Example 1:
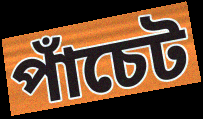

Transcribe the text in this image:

পাঁচেট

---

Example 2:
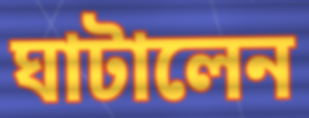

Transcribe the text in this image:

ঘাটালেন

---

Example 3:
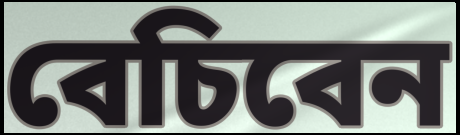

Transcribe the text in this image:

বেচিবেন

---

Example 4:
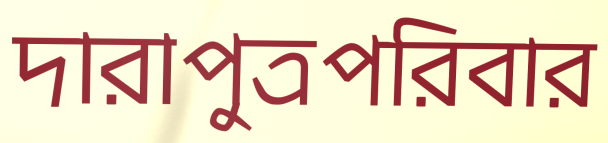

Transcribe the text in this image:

দারাপুত্রপরিবার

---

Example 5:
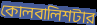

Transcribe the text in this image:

কোলবালিশটার